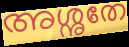
അശ്നുതേ